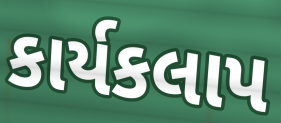
કાર્યકલાપ